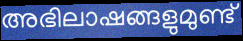
അഭിലാഷങ്ങളുമുണ്ട്